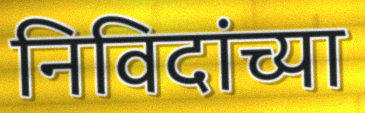
निविदांच्या